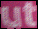
ut